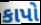
કાપો